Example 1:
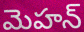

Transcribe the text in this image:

మెహన్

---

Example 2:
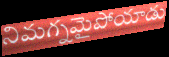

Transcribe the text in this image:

నిమగ్నమైపోయాడు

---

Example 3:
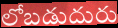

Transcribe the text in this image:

లోబడుదురు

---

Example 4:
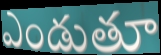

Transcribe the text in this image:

ఎండుతూ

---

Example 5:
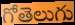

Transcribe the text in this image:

గోతెలుగు